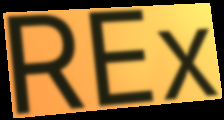
REx